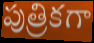
పుత్రికగా